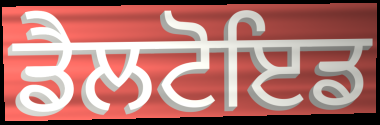
ਡੈਲਟੋਇਡ